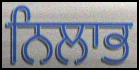
ਨਿਲਾਭ